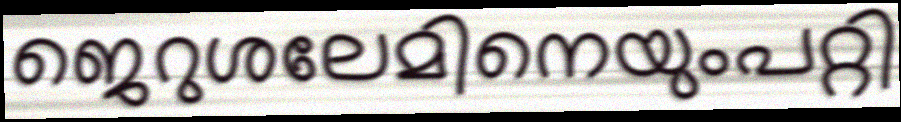
ജെറുശലേമിനെയുംപറ്റി